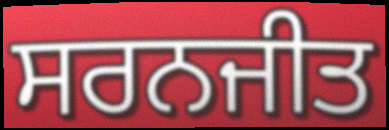
ਸਰਨਜੀਤ